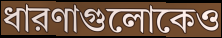
ধারণাগুলোকেও